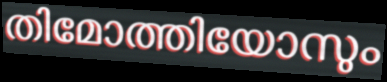
തിമോത്തിയോസും